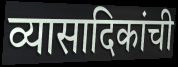
व्यासादिकांची